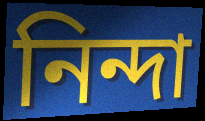
নিন্দা